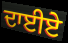
ਦਾਈਏ